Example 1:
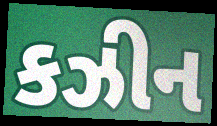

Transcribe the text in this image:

કઝીન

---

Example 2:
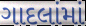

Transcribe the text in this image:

ગાદલાંમાં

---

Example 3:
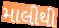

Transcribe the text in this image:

માલીથી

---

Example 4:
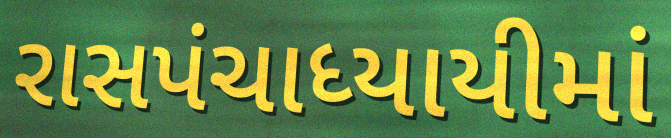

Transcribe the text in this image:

રાસપંચાધ્યાયીમાં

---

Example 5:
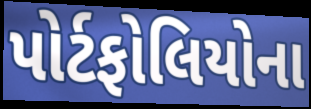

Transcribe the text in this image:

પોર્ટફોલિયોના